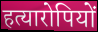
हत्‍यारोपियों